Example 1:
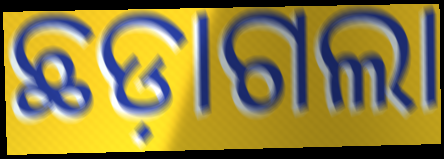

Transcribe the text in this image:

ଛଡ଼ାଗଲା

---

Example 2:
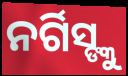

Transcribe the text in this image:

ନର୍ଗିସ୍ଙ୍କୁ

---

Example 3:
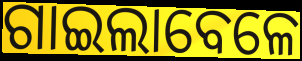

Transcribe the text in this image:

ଗାଇଲାବେଳେ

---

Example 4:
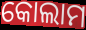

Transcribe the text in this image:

କୋଲାମ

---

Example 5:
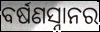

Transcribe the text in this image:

ବର୍ଷଣସ୍ନାନର